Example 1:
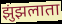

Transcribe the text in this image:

झुंझलाता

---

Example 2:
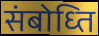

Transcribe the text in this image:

संबोध्ति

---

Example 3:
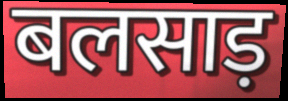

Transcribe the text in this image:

बलसाड़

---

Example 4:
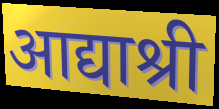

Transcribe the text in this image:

आद्याश्री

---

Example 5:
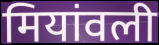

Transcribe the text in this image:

मियांवली